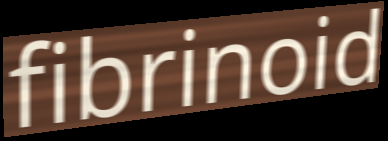
fibrinoid